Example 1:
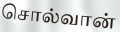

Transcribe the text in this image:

சொல்வான்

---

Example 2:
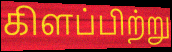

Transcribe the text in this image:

கிளப்பிற்று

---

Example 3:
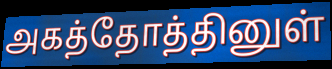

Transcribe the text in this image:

அகத்தோத்தினுள்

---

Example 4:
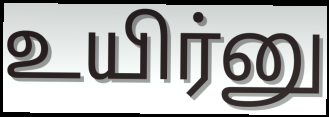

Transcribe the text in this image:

உயிர்னு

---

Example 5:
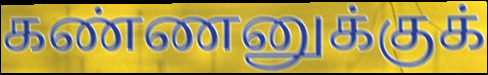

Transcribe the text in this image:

கண்ணனுக்குக்